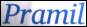
Pramil